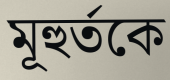
মূহুর্তকে